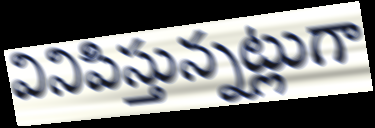
వినిపిస్తున్నట్లుగా